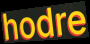
hodre